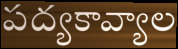
పద్యకావ్యాల